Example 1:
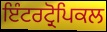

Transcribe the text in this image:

ਇੰਟਰਟ੍ਰੋਪਿਕਲ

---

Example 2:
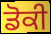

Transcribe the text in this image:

ਡੋਕੀ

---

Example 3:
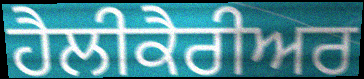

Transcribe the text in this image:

ਹੈਲੀਕੈਰੀਅਰ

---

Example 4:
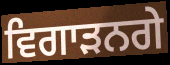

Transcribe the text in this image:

ਵਿਗਾੜਨਗੇ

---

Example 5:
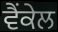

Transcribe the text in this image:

ਵੈਂਕੇਲ